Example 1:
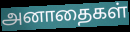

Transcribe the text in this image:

அனாதைகள்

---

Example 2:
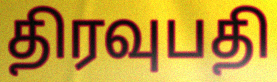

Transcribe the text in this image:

திரவுபதி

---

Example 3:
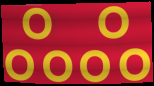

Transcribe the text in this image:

ஃஃ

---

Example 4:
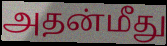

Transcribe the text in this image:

அதன்மீது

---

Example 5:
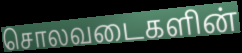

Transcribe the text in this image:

சொலவடைகளின்